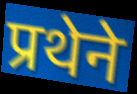
प्रथेने